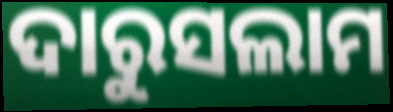
ଦାରୁସଲାମ